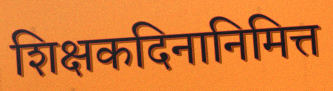
शिक्षकदिनानिमित्त